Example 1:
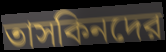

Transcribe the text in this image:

তাসকিনদের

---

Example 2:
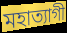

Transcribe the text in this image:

মহাত্যাগী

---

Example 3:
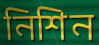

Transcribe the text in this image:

নিশিন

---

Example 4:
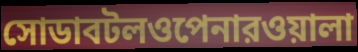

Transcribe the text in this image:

সোডাবটলওপেনারওয়ালা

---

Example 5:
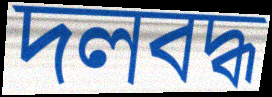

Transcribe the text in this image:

দলবদ্ধ